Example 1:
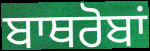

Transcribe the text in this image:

ਬਾਥਰੋਬਾਂ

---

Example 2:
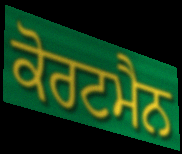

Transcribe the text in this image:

ਕੋਰਟਮੈਨ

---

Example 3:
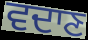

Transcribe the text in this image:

ਵਦਾਣ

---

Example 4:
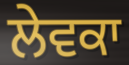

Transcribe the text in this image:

ਲੇਵਕਾ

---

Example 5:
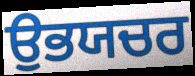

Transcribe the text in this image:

ਉਭਯਚਰ